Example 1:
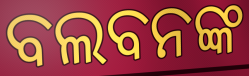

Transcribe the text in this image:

ବଲବନଙ୍କ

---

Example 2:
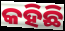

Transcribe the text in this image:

କହିଛି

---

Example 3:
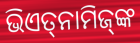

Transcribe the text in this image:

ଭିଏତ୍‌ନାମିଜ୍‌ଙ୍କ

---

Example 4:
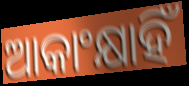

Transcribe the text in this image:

ଆକାଂକ୍ଷାହିଁ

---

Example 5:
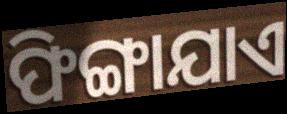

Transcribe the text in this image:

ଫିଙ୍ଗାଯାଏ